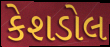
કેશડોલ